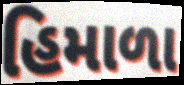
હિમાળા